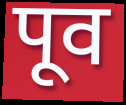
पूव